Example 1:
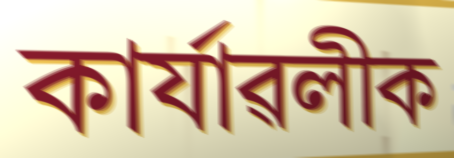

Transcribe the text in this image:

কাৰ্যাৱলীক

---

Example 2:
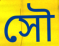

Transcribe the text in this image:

সৌ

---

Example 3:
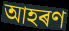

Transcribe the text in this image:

আহৰণ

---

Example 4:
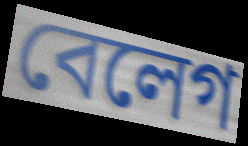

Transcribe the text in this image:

বেলেগ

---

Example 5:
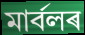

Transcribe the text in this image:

মাৰ্বলৰ